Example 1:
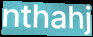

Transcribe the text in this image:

nthahj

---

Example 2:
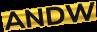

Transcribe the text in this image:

ANDW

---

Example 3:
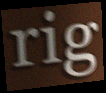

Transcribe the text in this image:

rig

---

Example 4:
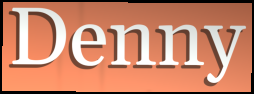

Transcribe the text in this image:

Denny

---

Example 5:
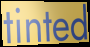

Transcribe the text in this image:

tinted